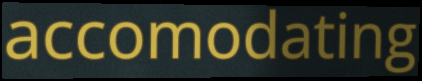
accomodating